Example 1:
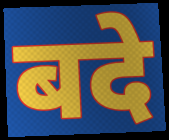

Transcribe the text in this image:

बदे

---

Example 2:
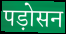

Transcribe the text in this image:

पड़ोसन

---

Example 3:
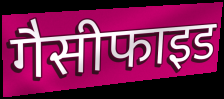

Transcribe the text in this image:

गैसीफाइड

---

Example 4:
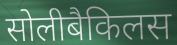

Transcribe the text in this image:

सोलीबैकिलस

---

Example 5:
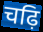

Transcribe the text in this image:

चढ़ि